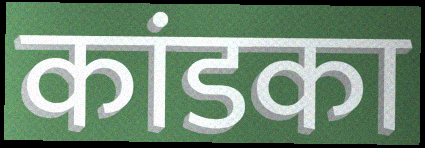
कांडका